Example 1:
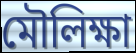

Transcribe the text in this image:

মৌলিক্ষা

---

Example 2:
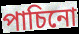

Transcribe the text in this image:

পাচিনো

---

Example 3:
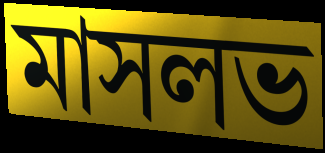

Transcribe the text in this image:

মাসলভ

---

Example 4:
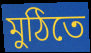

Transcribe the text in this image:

মুঠিতে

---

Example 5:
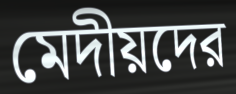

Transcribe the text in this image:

মেদীয়দের